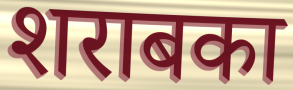
शराबका